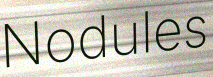
Nodules